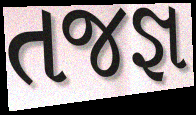
તજજ્ઞ